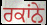
ਰਕਾਂਨੇ